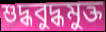
শুদ্ধবুদ্ধমুক্ত